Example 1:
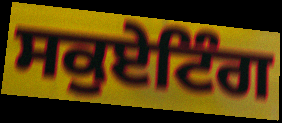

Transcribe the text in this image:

ਸਕੁਏਟਿੰਗ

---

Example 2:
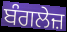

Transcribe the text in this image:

ਬੰਗਲੇਜ਼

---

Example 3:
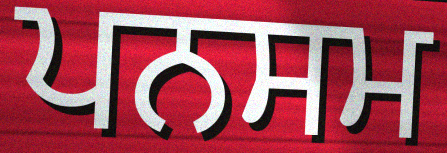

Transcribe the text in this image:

ਪਨਸਮ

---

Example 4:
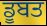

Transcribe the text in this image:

ਡੂਬਤ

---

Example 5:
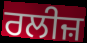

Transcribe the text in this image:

ਰਲੀਜ਼